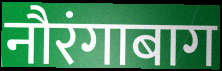
नौरंगाबाग